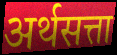
अर्थसत्ता